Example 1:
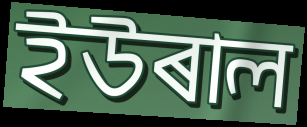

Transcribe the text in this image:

ইউৰাল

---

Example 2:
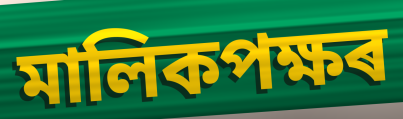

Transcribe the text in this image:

মালিকপক্ষৰ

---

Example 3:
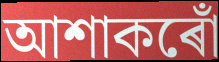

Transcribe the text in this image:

আশাকৰোঁ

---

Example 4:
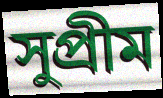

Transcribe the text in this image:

সুপ্ৰীম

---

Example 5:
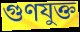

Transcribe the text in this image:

গুণযুক্ত